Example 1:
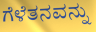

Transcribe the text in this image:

ಗೆಳೆತನವನ್ನು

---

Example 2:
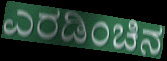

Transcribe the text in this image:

ಎರಡಿಂಚಿನ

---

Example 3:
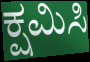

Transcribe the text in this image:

ಕ್ಷಮಿಸಿ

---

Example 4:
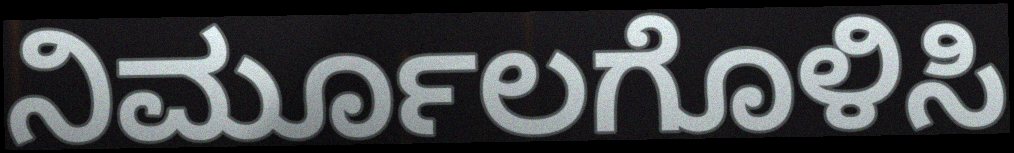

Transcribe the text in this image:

ನಿರ್ಮೂಲಗೊಳಿಸಿ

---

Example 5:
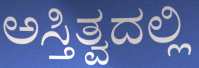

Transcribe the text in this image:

ಅಸ್ತಿತ್ವದಲ್ಲಿ